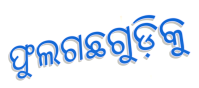
ଫୁଲଗଛଗୁଡ଼ିକୁ